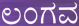
ಲಂಗವ